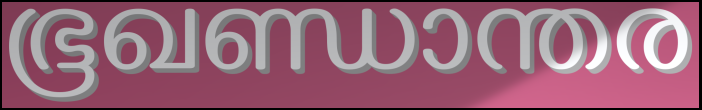
ഭൂഖണ്ഡാന്തര